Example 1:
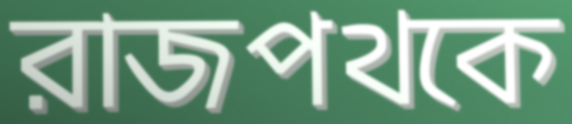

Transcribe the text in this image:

রাজপথকে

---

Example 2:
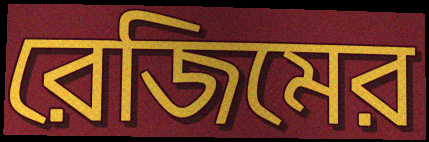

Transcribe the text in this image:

রেজিমের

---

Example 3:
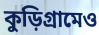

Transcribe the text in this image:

কুড়িগ্রামেও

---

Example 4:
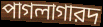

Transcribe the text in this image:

পাগলাগারদ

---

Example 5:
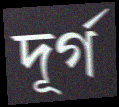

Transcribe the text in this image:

দূর্গ